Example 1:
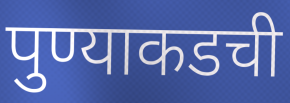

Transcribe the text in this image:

पुण्याकडची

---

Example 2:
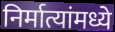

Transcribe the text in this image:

निर्मात्यांमध्ये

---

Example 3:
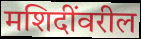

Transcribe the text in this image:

मशिदींवरील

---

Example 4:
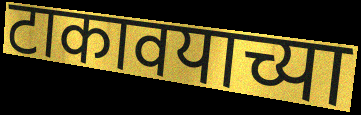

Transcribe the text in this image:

टाकावयाच्या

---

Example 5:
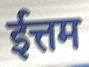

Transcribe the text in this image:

ईत्तम